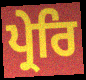
ਪ੍ਰੇਰਿ